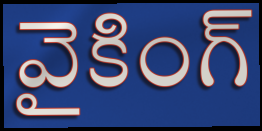
వైకింగ్